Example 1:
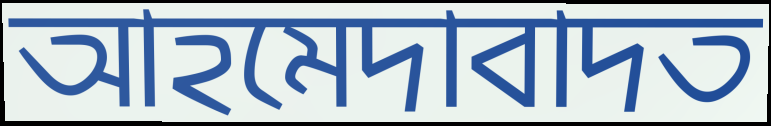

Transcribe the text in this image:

আহমেদাবাদত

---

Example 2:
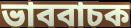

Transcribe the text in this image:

ভাববাচক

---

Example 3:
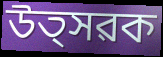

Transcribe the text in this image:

উত্সৱক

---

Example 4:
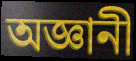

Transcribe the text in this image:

অজ্ঞানী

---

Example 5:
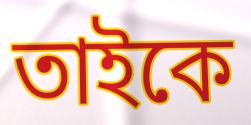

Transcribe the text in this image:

তাইকে